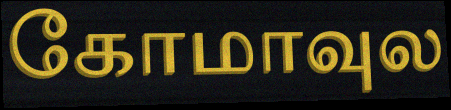
கோமாவுல